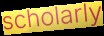
scholarly